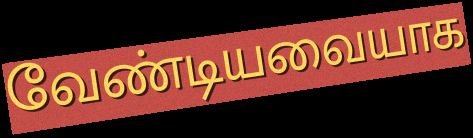
வேண்டியவையாக